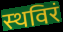
स्थविरं